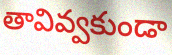
తావివ్వకుండా